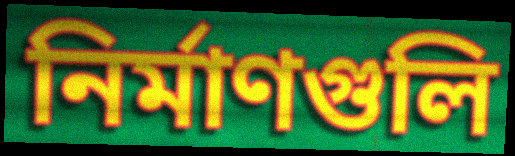
নির্মাণগুলি